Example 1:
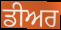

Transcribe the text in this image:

ਡੀਅਰ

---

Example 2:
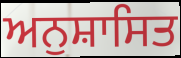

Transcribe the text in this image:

ਅਨੁਸ਼ਾਸਿਤ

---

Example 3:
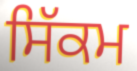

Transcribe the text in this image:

ਸਿੱਕਮ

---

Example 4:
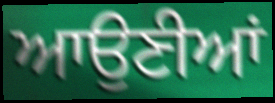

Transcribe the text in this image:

ਆਉਣੀਆਂ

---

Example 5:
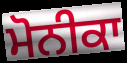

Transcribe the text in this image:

ਮੋਨੀਕਾ